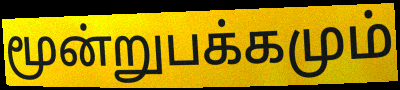
மூன்றுபக்கமும்